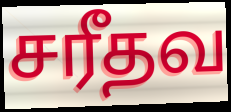
சரீதவ